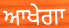
ਆਖੇਗਾ